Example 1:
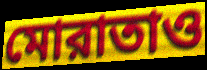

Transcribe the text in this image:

মোরাতাও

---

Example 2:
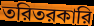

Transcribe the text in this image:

তরিতরকারি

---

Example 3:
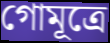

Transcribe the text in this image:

গোমূত্রে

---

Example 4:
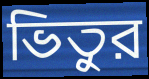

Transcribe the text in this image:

ভিতুর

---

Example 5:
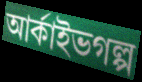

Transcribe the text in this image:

আর্কাইভগল্প